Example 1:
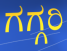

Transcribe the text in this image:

ಗಗ್ಗರಿ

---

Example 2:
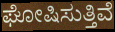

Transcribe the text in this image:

ಘೋಷಿಸುತ್ತಿವೆ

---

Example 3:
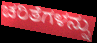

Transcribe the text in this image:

ಚರಿತೆಗಳನ್ನು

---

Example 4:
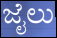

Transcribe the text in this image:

ಜೈಲು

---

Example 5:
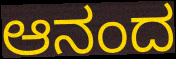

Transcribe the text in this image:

ಆನಂದ